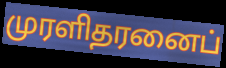
முரளிதரனைப்